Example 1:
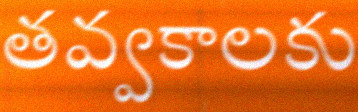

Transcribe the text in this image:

తవ్వకాలకు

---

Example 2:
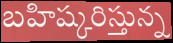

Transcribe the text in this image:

బహిష్కరిస్తున్న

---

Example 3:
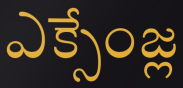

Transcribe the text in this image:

ఎక్సేంజ్ల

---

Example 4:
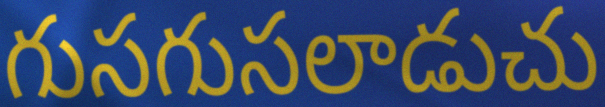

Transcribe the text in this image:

గుసగుసలాడుచు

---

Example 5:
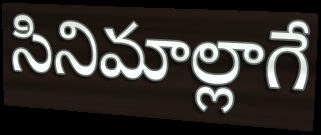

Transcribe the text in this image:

సినిమాల్లాగే